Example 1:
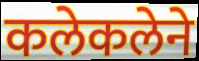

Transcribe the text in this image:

कलेकलेने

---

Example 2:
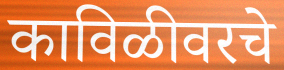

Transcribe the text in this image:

काविळीवरचे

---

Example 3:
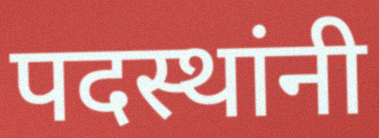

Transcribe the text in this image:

पदस्थांनी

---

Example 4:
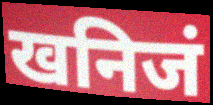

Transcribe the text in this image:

खनिजं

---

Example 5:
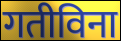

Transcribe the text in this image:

गतीविना